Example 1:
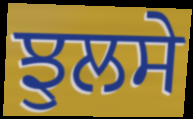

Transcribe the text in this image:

ਝੁਲਸੇ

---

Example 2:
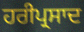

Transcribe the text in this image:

ਹਰੀਪ੍ਰਸਾਦ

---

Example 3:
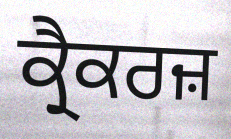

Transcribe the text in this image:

ਕ੍ਰੈਕਰਜ਼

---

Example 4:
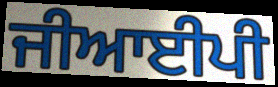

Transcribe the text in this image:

ਜੀਆਈਪੀ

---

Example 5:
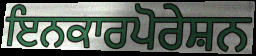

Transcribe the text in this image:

ਇਨਕਾਰਪੋਰੇਸ਼ਨ